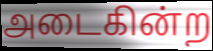
அடைகின்ற